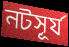
নটসূর্য